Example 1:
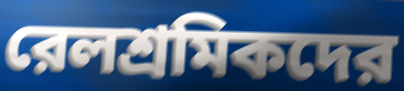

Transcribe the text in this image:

রেলশ্রমিকদের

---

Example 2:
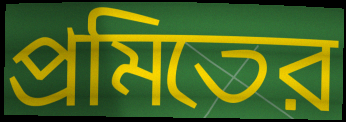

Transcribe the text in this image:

প্রমিতের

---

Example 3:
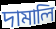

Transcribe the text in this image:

দামালি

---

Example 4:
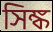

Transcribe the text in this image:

সিঙ্ক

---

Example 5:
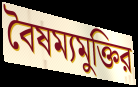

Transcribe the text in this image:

বৈষম্যমুক্তির